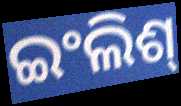
ଇଂଲିଶ୍